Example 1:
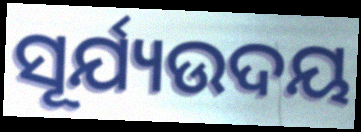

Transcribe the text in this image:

ସୂର୍ଯ୍ୟଉଦୟ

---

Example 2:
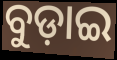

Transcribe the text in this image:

ବୁଡ଼ାଇ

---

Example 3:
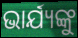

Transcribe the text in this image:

ଭାର୍ଯ୍ୟଙ୍କୁ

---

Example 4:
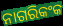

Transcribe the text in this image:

ନାଗରିକଂକ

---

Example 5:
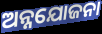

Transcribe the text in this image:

ଅନ୍ନଯୋଜନା